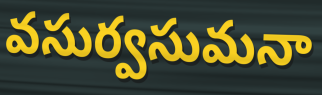
వసుర్వసుమనా